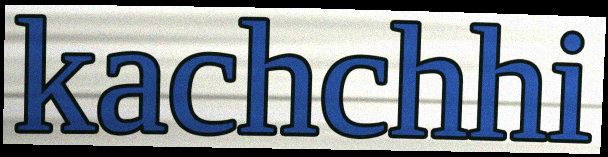
kachchhi